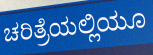
ಚರಿತ್ರೆಯಲ್ಲಿಯೂ